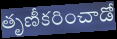
తృణీకరించాడో